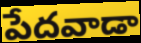
పేదవాడా